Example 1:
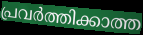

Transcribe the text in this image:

പ്രവർത്തിക്കാത്ത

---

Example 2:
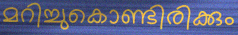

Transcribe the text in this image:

മറിച്ചുകൊണ്ടിരിക്കും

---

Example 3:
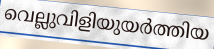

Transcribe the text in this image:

വെല്ലുവിളിയുയർത്തിയ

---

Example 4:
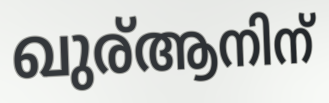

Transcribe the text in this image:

ഖുര്ആനിന്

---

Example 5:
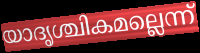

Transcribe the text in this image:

യാദൃശ്ചികമല്ലെന്ന്